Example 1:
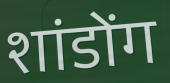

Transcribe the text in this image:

शांडोंग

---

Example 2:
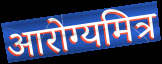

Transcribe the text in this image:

आरोग्यमित्र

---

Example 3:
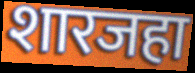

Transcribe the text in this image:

शारजहा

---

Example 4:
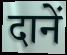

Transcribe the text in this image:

दानें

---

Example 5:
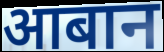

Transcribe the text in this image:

आबान